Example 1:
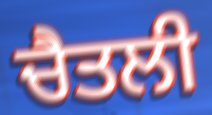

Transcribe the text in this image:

ਚੈਤਲੀ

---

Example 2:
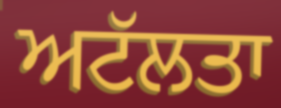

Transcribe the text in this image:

ਅਟੱਲਤਾ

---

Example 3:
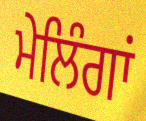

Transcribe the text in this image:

ਮੇਲਿੰਗਾਂ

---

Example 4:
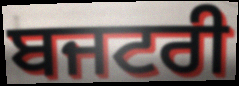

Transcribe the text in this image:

ਬਜਟਰੀ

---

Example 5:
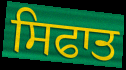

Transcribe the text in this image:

ਸਿਫਾਤ